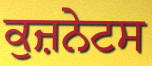
ਕੁਜ਼ਨੇਟਸ